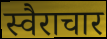
स्वैराचार